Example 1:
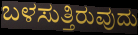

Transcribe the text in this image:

ಬಳಸುತ್ತಿರುವುದು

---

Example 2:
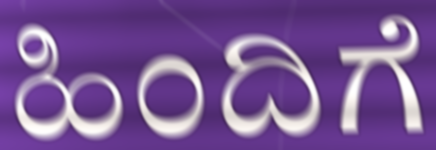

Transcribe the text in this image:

ಹಿಂದಿಗೆ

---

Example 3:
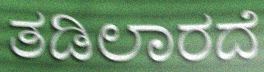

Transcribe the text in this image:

ತಡಿಲಾರದೆ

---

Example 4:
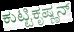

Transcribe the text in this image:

ಕುಟ್ಟಿಕೃಷ್ಣನ್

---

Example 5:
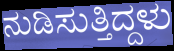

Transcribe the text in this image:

ನುಡಿಸುತ್ತಿದ್ದಳು